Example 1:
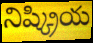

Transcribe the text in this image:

నిష్క్రియ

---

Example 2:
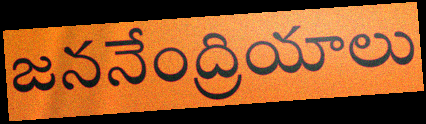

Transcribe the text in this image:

జననేంద్రియాలు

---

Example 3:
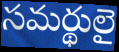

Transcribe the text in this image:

సమర్థులై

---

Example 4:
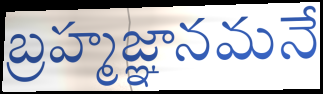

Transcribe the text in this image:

బ్రహ్మజ్ఞానమనే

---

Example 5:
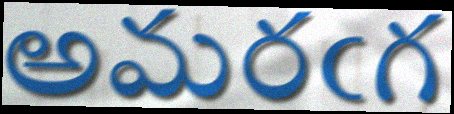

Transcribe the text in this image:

అమరఁగ